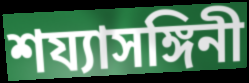
শয্যাসঙ্গিনী